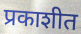
प्रकाशीत